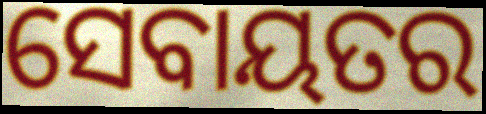
ସେବାୟତର